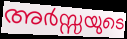
അർസ്സയുടെ